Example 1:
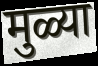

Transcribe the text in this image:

मुळ्या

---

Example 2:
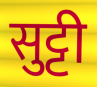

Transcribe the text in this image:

सुट्टी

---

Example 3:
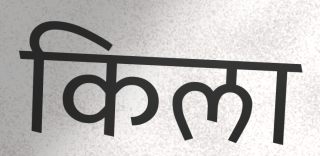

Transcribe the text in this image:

किला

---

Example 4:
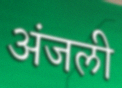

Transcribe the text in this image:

अंजली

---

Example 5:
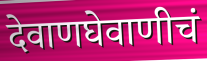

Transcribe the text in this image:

देवाणघेवाणीचं